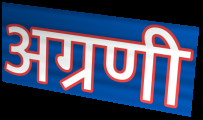
अग्रणी